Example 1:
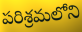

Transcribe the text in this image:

పరిశ్రమలోని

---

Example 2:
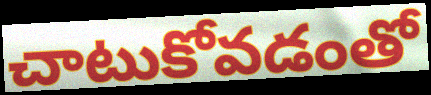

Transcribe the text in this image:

చాటుకోవడంతో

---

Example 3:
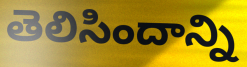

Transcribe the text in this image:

తెలిసిందాన్ని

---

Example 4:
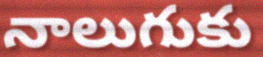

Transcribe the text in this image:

నాలుగుకు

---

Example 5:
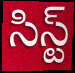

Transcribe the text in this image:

సిస్ట్